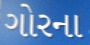
ગોરના